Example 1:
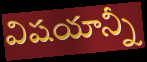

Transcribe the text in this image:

విషయాన్నీ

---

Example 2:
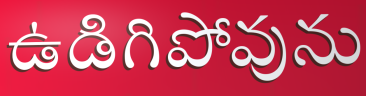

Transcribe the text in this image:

ఉడిగిపోవును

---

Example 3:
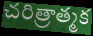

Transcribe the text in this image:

చరిత్రాత్మక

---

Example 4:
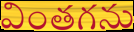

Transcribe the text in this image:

వింతగను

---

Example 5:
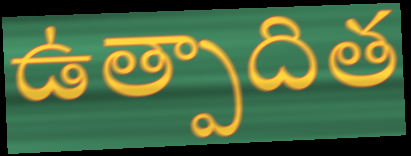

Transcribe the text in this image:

ఉత్పాదిత